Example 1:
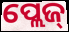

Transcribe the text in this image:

ପ୍ଲେଜ୍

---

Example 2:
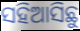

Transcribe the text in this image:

ସହିଆସିଛୁ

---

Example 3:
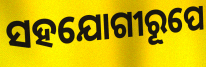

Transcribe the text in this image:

ସହଯୋଗୀରୂପେ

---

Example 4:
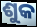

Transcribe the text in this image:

ଶୁକ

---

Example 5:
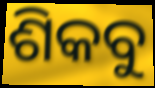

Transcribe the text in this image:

ଶିକବୁ